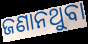
ଜଣାନଥୁବା